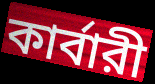
কার্বারী